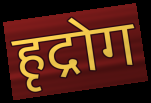
हृद्रोग